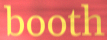
booth